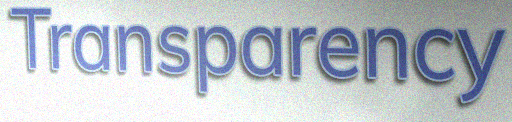
Transparency